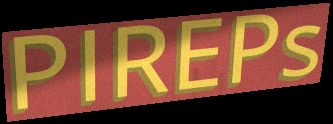
PIREPs